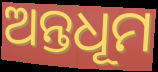
ଅନ୍ତଧୂମ